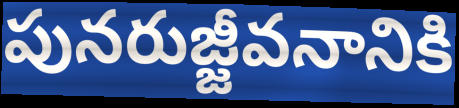
పునరుజ్జీవనానికి